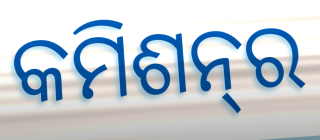
କମିଶନ୍‌ର